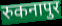
रुकनापुर